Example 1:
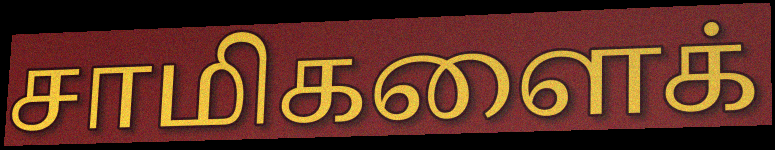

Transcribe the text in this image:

சாமிகளைக்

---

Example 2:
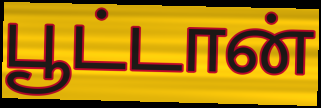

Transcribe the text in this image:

பூட்டான்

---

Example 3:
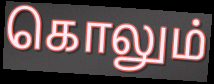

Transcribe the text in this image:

கொலும்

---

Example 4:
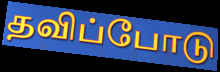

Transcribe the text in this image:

தவிப்போடு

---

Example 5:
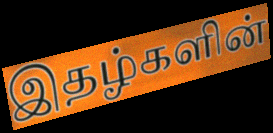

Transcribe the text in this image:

இதழ்களின்